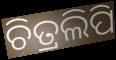
ଚିତ୍ରଲିପି